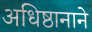
अधिष्ठानाने